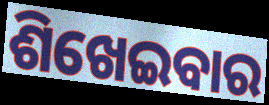
ଶିଖେଇବାର